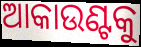
ଆକାଉଣ୍ଟକୁ